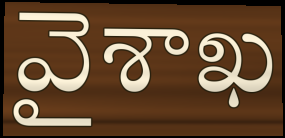
వైశాఖ